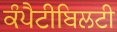
ਕੰਪੈਟੀਬਿਲਟੀ